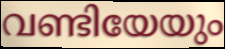
വണ്ടിയേയും